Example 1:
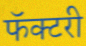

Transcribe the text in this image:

फॅक्टरी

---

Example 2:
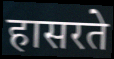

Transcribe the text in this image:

हासरते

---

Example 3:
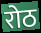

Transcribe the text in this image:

रोठ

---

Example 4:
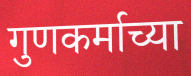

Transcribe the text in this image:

गुणकर्माच्या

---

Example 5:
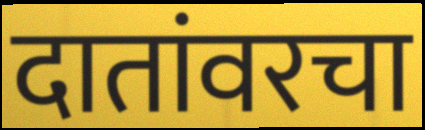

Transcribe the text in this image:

दातांवरचा